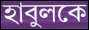
হাবুলকে